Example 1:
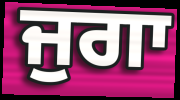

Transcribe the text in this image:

ਜੁਗਾ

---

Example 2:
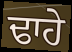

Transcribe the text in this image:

ਢਾਹੇ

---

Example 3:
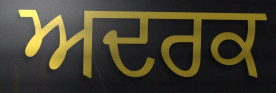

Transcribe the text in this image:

ਅਦਰਕ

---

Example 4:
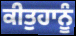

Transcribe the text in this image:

ਕੀਤੁਹਾਨੂੰ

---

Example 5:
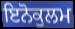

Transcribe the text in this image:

ਇਨੋਕੁਲਮ